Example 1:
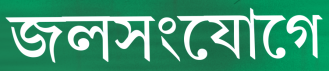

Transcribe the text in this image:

জলসংযোগে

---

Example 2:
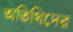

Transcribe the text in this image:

অতিথিদের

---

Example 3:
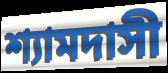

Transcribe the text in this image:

শ্যামদাসী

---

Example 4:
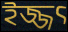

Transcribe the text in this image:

ইজ্জৎ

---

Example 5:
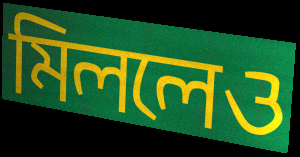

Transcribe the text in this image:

মিললেও